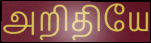
அறிதியே